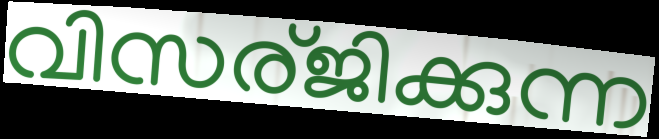
വിസര്ജിക്കുന്ന